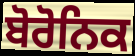
ਬੋਰੋਨਿਕ